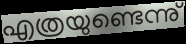
എത്രയുണ്ടെന്നു്